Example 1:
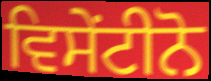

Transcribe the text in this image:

ਵਿਸੇਂਟੀਨੋ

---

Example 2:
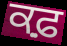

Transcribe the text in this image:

ਕ਼ਫ਼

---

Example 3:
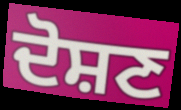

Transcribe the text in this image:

ਦੋਸ਼ਣ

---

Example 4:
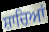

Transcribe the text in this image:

ਸ਼ਾਚਿਆਂ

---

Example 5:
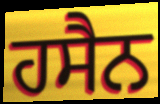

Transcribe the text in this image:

ਹਸੈਨ